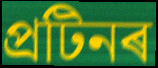
প্ৰটিনৰ